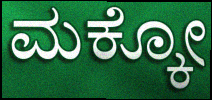
ಮಕ್ಕೋ